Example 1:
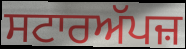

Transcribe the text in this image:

ਸਟਾਰਅੱਪਜ਼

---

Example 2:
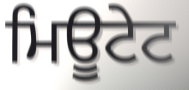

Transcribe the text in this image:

ਮਿਊਟੇਟ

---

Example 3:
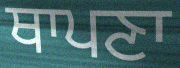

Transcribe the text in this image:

ਥਾਪਣਾ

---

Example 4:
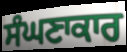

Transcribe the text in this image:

ਸੰਘਣਾਕਾਰ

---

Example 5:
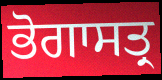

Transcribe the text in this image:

ਭੋਗਾਸਤ੍ਰ